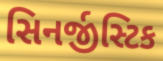
સિનર્જીસ્ટિક